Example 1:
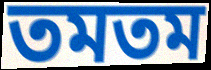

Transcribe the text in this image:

তমতম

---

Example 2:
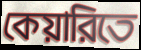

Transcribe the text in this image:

কেয়ারিতে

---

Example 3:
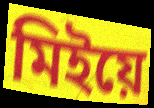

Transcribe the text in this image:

মিইয়ে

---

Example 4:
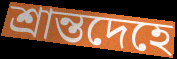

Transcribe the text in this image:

শ্রান্তদেহে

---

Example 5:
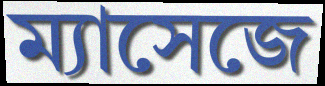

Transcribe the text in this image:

ম্যাসেজে